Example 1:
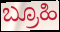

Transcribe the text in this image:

ಬ್ರೂಹಿ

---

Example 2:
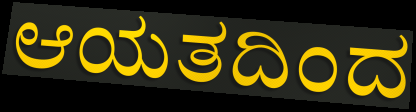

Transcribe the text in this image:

ಆಯತದಿಂದ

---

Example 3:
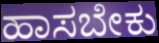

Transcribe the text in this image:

ಹಾಸಬೇಕು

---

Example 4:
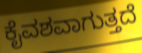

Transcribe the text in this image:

ಕೈವಶವಾಗುತ್ತದೆ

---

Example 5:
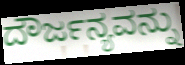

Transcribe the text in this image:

ದೌರ್ಜನ್ಯವನ್ನು